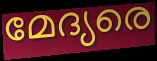
മേദ്യരെ